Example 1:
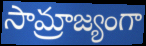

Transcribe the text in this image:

సామ్రాజ్యంగా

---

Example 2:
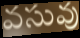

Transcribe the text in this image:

వసువు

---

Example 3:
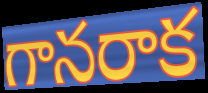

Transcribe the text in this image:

గానరాక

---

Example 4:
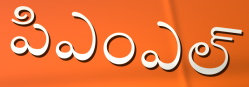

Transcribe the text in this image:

పిఎంఎల్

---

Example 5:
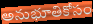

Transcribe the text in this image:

అనుభూతికోసం